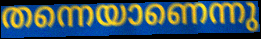
തന്നെയാണെന്നു